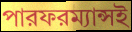
পারফরম্যান্সই